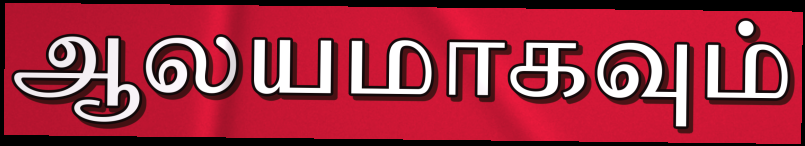
ஆலயமாகவும்